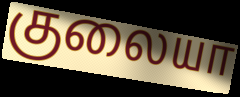
குலையா